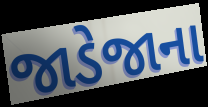
જાડેજાના